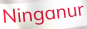
Ninganur